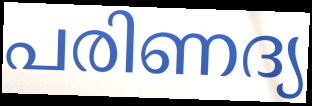
പരിണദ്യ